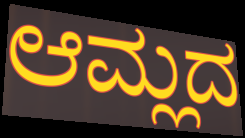
ಆಮ್ಲದ